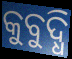
କୁବୁଦ୍ଧି